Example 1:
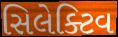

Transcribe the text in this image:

સિલેક્ટિવ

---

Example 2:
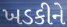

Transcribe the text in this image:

ખડકીને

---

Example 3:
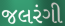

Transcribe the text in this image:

જલરંગી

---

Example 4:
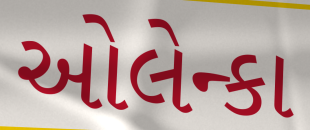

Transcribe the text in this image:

ઓલેન્કા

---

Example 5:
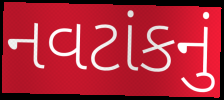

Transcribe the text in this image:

નવટાંકનું